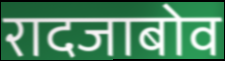
रादजाबोव